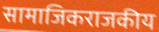
सामाजिकराजकीय